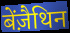
बेंज़ैथिन